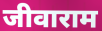
जीवाराम